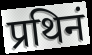
प्रथिनं